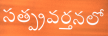
సత్ప్రవర్తనలో